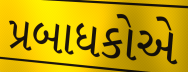
પ્રબાધકોએ